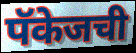
पॅकेजची